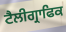
ਟੈਲੀਗ੍ਰਾਫਿਕ